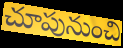
చూపునుంచి